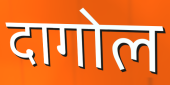
दागोल